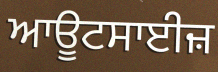
ਆਊਟਸਾਈਜ਼